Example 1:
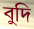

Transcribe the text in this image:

বুদি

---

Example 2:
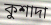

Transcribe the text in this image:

কুশাদা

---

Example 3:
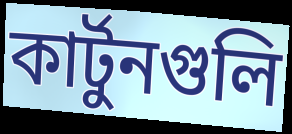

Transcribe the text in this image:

কার্টুনগুলি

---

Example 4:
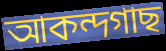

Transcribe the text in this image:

আকন্দগাছ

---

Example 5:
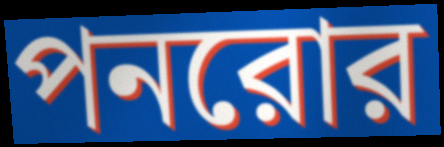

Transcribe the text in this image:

পনরোর